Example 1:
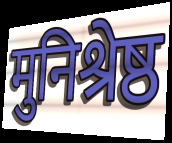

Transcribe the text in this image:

मुनिश्रेष्ठ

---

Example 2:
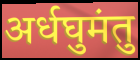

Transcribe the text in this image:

अर्धघुमंतु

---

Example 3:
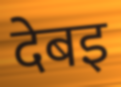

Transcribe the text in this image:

देबइ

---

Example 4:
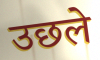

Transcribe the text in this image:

उछले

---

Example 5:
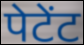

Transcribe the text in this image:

पेटेंट